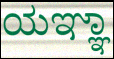
ಯಞ್ಞಾ